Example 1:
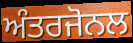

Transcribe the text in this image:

ਅੰਤਰਜੋਨਲ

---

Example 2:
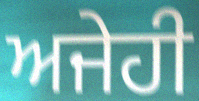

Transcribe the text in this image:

ਅਜੇਹੀ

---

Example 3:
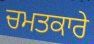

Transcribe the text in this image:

ਚਮਤਕਾਰੇ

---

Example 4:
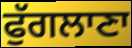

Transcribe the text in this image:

ਫੁੱਗਲਾਣਾ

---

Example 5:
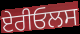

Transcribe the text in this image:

ਏਰੀਓਲਸ